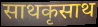
साथकृसाथ